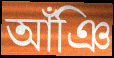
আঁঞি